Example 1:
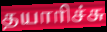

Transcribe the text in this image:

தயாரிச்சு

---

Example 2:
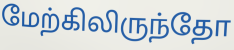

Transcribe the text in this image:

மேற்கிலிருந்தோ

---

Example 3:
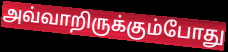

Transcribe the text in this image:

அவ்வாறிருக்கும்போது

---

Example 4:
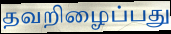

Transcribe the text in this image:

தவறிழைப்பது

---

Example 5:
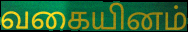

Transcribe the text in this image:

வகையினம்